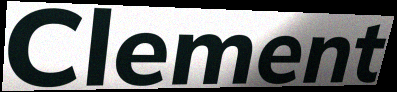
Clement